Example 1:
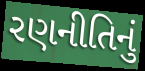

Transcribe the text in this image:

રણનીતિનું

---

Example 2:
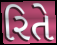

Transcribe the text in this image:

રિતે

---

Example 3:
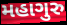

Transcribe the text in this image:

મહાગુરુ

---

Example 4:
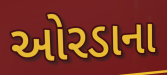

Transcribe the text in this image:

ઓરડાના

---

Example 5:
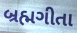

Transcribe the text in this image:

બ્રહ્મગીતા